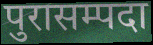
पुरासम्पदा